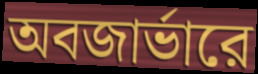
অবজার্ভারে